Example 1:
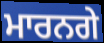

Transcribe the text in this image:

ਮਾਰਨਗੇ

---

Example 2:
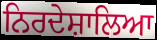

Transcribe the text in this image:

ਨਿਰਦੇਸ਼ਾਲਿਆ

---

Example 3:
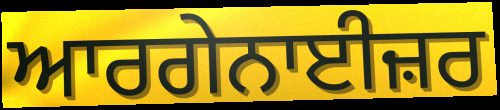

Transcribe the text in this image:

ਆਰਗੇਨਾਈਜ਼ਰ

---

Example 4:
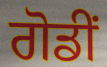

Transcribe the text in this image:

ਗੋਡੀਂ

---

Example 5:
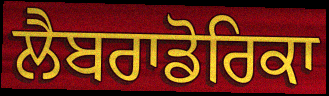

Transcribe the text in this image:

ਲੈਬਰਾਡੋਰਿਕਾ